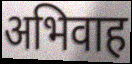
अभिवाह